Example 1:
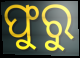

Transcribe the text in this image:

ଫୁରୁ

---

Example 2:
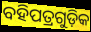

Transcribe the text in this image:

ବହିପତ୍ରଗୁଡ଼ିକ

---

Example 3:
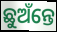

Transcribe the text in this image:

ଛୁଅଁନ୍ତେ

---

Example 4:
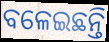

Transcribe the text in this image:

ବଳେଇଛନ୍ତି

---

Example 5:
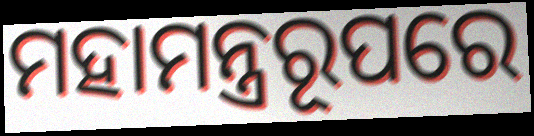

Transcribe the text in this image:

ମହାମନ୍ତ୍ରରୂପରେ